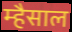
म्हैसाल